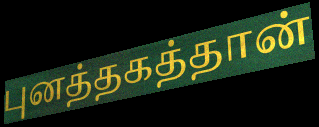
புனத்தகத்தான்